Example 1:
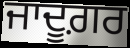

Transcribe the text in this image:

ਜਾਦੂਗ਼ਰ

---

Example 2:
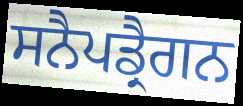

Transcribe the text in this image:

ਸਨੈਪਡ੍ਰੈਗਨ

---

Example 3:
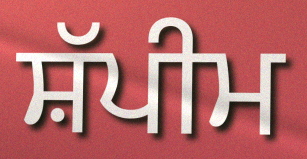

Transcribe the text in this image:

ਸ਼ੱਪੀਮ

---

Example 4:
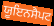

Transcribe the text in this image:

ਯੂਇਨਸੈਪਟ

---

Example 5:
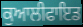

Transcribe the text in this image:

ਕੁਆਲੀਫਾਇਡ